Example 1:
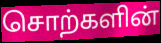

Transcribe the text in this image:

சொற்களின்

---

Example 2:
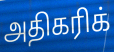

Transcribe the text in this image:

அதிகரிக்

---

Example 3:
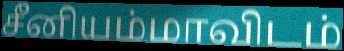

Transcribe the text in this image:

சீனியம்மாவிடம்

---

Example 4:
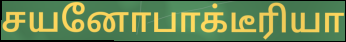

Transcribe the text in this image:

சயனோபாக்டீரியா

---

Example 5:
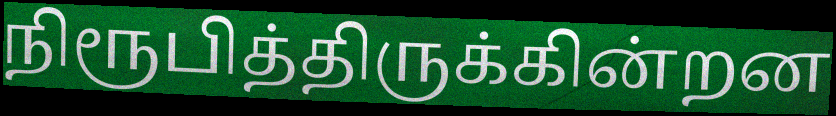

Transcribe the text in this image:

நிரூபித்திருக்கின்றன